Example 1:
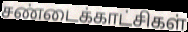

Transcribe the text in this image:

சண்டைக்காட்சிகள்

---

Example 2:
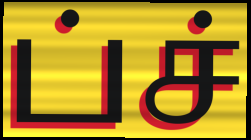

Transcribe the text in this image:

ப்ச்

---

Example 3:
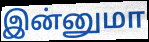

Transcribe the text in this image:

இன்னுமா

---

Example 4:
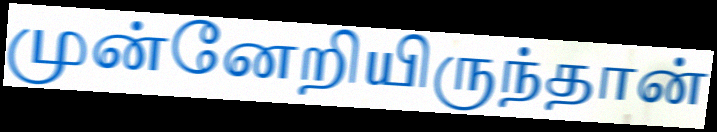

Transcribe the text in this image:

முன்னேறியிருந்தான்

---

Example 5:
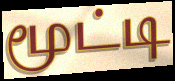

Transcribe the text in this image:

மூட்டி